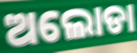
ଅଲୋଡା